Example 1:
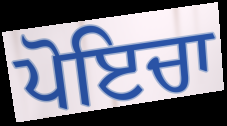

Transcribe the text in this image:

ਪੋਇਚਾ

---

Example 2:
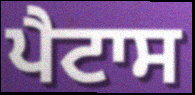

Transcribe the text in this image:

ਪੈਟਾਸ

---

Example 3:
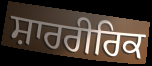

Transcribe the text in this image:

ਸ਼ਾਰਰੀਰਿਕ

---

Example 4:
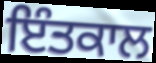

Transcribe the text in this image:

ਇੰਤਕਾਲ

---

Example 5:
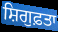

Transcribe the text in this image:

ਸ਼ਿਗੁਫ਼ਤਾ